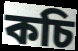
কচি